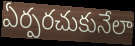
ఏర్పరచుకునేలా